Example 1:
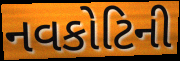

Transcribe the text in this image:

નવકોટિની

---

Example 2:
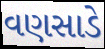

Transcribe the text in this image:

વણસાડે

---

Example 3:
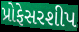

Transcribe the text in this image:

પ્રોફેસરશીપ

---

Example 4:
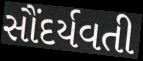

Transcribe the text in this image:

સૌંદર્યવતી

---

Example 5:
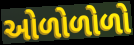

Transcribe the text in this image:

ઓળોળોળો